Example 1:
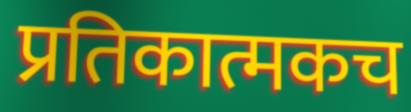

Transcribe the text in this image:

प्रतिकात्मकच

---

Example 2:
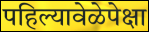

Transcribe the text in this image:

पहिल्यावेळेपेक्षा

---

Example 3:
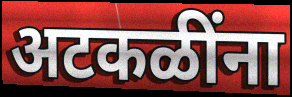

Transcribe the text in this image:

अटकळींना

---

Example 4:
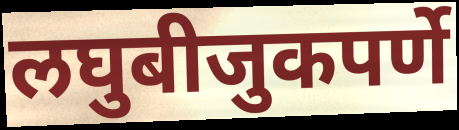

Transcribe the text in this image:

लघुबीजुकपर्णे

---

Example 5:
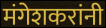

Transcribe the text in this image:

मंगेशकरांनी